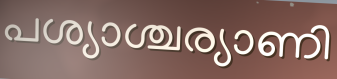
പശ്യാശ്ചര്യാണി